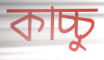
কাচ্চু